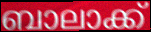
ബാലാക്ക്